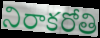
నిరాకరోతి